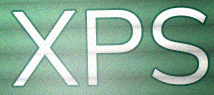
XPS